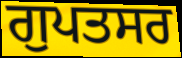
ਗੁਪਤਸਰ